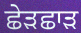
ਛੇੜਛਾੜ